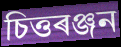
চিত্তৰঞ্জন